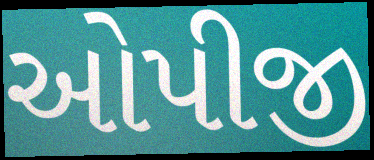
ઓપીજી